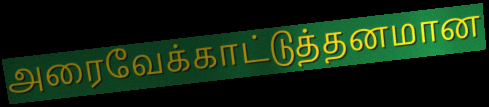
அரைவேக்காட்டுத்தனமான